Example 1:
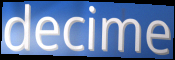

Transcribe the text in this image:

decime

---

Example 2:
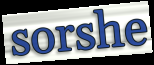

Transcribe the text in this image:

sorshe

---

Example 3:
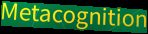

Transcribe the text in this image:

Metacognition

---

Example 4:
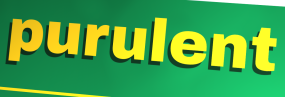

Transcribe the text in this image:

purulent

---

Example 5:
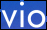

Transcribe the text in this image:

vio